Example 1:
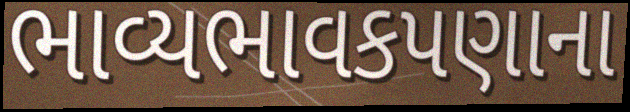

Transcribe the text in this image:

ભાવ્યભાવકપણાના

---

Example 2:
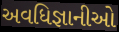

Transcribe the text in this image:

અવધિજ્ઞાનીઓ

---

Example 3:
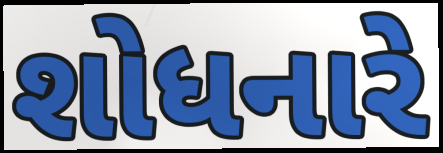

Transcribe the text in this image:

શોધનારે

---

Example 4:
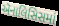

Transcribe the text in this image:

ઍનાલિસિસમાં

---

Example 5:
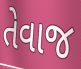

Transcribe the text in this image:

તેવાજ